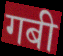
गबी